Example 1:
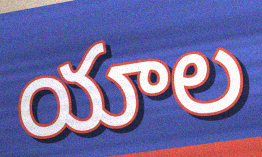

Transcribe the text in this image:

యాల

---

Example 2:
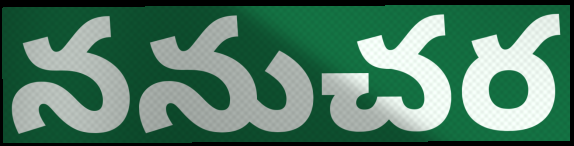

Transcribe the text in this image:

ననుచర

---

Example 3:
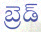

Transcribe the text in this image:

బ్రెడ్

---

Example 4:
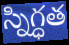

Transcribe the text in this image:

స్నిగ్ధత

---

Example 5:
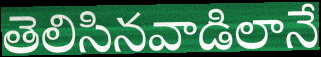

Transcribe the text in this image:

తెలిసినవాడిలానే